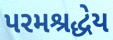
પરમશ્રદ્ધેય